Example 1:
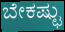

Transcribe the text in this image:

ಬೇಕಷ್ಟು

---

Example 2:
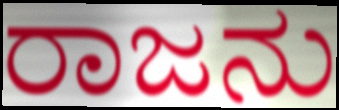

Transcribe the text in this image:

ರಾಜನು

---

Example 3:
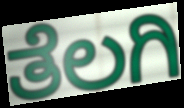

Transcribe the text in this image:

ತೆಲಗಿ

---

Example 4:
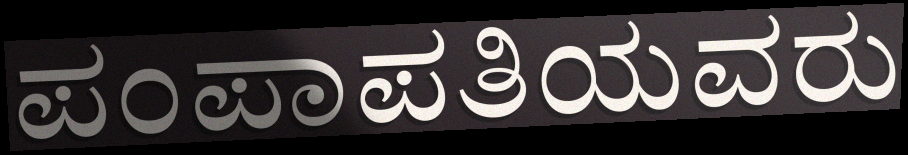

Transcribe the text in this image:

ಪಂಪಾಪತಿಯವರು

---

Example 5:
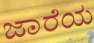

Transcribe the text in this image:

ಜಾರೆಯ